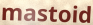
mastoid